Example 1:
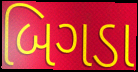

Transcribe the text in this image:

બિગડા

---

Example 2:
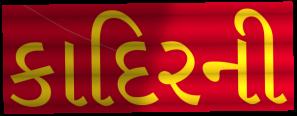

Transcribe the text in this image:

કાદિરની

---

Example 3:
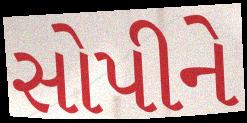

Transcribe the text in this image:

સોપીને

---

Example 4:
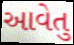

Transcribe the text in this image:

આવેતુ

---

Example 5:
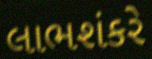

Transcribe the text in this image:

લાભશંકરે